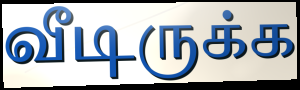
வீடிருக்க